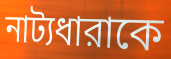
নাট্যধারাকে